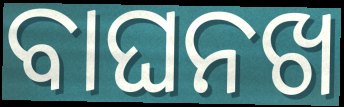
ବାଘନଖ